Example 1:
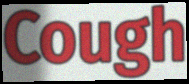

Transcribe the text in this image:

Cough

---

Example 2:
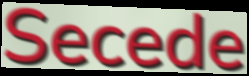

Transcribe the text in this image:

Secede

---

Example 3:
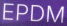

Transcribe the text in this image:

EPDM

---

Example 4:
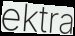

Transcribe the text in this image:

ektra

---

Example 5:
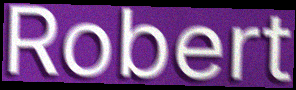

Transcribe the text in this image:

Robert